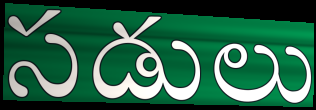
సడులు